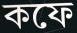
কফে